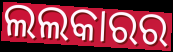
ଲଲକାରର